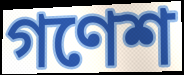
গণেশ